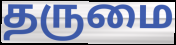
தருமை